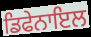
ਡਿਫੇਨਾਇਲ